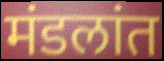
मंडलांत